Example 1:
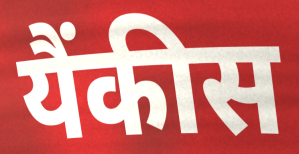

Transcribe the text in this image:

यैंकीस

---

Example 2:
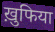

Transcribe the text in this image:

ख़ुफिया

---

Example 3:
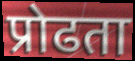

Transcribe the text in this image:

प्रोढता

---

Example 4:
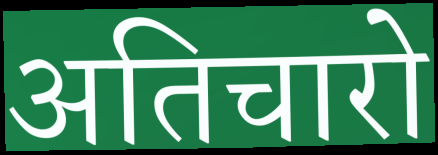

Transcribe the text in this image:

अतिचारो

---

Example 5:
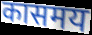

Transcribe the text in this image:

कासमय